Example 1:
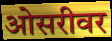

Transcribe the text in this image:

ओसरीवर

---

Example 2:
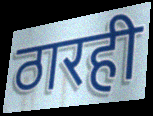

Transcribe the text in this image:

ठारही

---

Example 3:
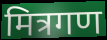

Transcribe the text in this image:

मित्रगण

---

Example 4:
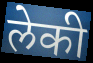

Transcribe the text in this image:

लेकी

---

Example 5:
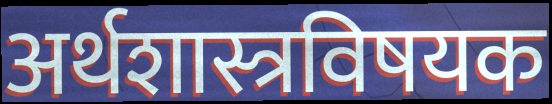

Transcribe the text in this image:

अर्थशास्त्रविषयक